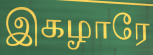
இகழாரே